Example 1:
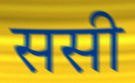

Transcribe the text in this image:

ससी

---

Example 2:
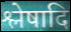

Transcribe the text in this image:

श्लेषादि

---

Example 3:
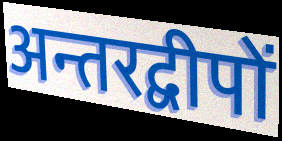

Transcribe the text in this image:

अन्तरद्वीपों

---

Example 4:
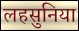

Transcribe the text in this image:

लहसुनिया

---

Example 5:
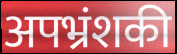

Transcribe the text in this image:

अपभ्रंशकी